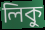
লিকু